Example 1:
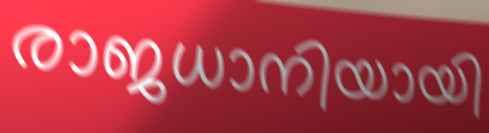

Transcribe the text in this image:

രാജധാനിയായി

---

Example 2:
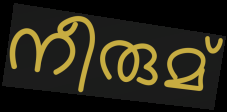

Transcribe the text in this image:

നീരുമ്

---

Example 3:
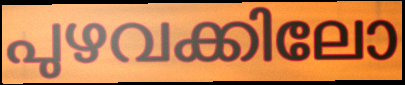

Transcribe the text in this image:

പുഴവക്കിലോ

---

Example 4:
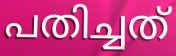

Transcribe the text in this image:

പതിച്ചത്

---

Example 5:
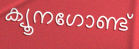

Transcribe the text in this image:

ക്യൂനഗോണ്ട്